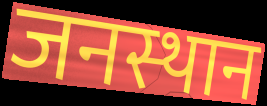
जनस्थान